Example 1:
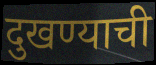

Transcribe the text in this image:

दुखण्याची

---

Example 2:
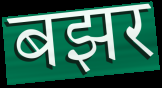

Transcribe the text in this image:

बझर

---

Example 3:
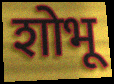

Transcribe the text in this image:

शोभू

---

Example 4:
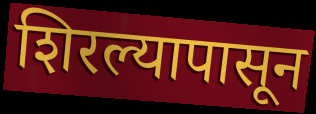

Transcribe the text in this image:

शिरल्यापासून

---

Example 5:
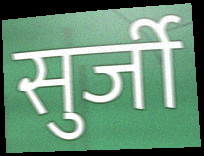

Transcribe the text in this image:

सुर्जी